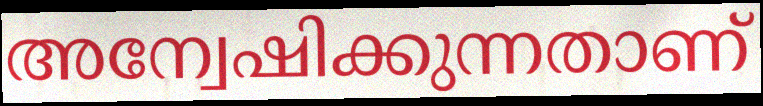
അന്വേഷിക്കുന്നതാണ്